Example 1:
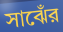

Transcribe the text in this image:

সাঝেঁর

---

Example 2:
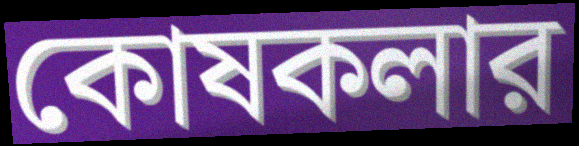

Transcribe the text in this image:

কোষকলার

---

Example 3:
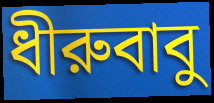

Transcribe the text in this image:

ধীরুবাবু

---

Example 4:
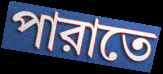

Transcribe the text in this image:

পারাতে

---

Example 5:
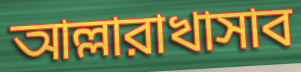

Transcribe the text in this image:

আল্লারাখাসাব